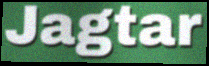
Jagtar